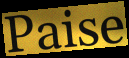
Paise